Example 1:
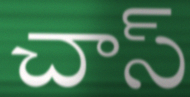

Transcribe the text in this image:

చాస్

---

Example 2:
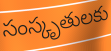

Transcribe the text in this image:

సంస్కృతులకు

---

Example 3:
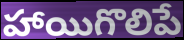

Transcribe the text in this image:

హాయిగొలిపే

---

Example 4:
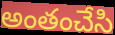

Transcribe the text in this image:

అంతంచేసి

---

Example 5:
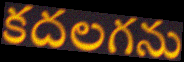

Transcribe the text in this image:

కదలగను